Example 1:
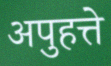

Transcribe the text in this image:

अपुहत्ते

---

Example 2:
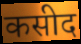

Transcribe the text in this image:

कसीद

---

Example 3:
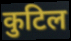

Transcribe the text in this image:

कुटिल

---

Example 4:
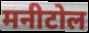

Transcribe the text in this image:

मनीटोल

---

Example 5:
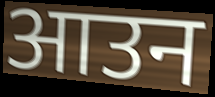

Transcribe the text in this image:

आउन